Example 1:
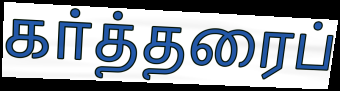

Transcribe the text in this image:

கர்த்தரைப்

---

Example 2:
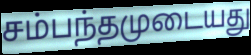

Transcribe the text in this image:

சம்பந்தமுடையது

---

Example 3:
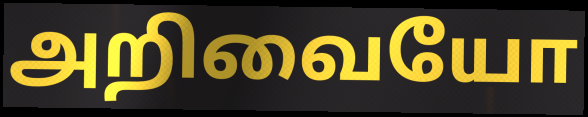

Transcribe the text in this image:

அறிவையோ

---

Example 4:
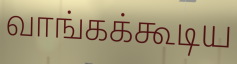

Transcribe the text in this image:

வாங்கக்கூடிய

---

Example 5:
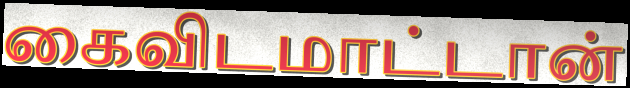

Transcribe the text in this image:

கைவிடமாட்டான்